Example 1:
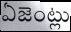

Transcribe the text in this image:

ఏజెంట్లు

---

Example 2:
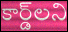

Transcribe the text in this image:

కార్డ్‌లని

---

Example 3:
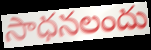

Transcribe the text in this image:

సాధనలందు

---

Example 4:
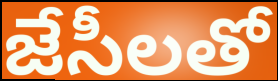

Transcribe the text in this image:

జేసీలతో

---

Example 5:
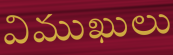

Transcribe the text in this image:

విముఖులు